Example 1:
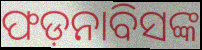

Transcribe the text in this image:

ଫଡ଼ନାବିସଙ୍କ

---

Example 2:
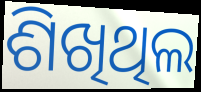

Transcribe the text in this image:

ଶିଖିଥିଲ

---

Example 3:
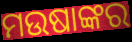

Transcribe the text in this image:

ମଉଷାଙ୍କର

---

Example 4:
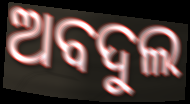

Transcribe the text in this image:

ଅବଦୁଲ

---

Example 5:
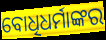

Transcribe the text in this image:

ବୋଧିଧର୍ମାଙ୍କର